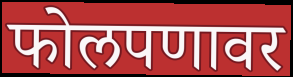
फोलपणावर